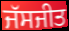
ਜੱਸਜੀਤ